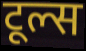
टूल्स